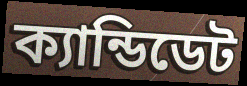
ক্যান্ডিডেট